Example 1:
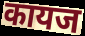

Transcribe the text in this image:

कायज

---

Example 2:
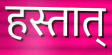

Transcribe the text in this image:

हस्तात्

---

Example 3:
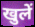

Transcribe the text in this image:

खुलें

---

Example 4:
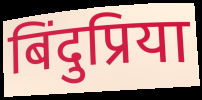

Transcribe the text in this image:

बिंदुप्रिया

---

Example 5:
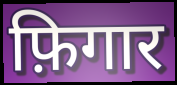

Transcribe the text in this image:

फ़िगार